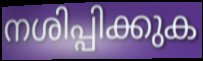
നശിപ്പിക്കുക